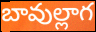
బావుల్లాగ